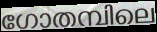
ഗോതമ്പിലെ